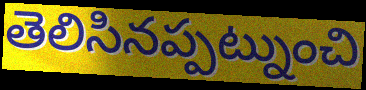
తెలిసినప్పట్నుంచి